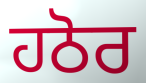
ਹਠੋਰ